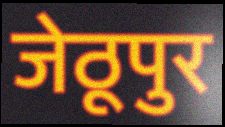
जेठूपुर